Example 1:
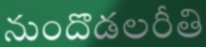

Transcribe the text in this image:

నుందొడలరీతి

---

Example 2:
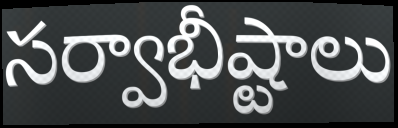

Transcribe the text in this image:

సర్వాభీష్టాలు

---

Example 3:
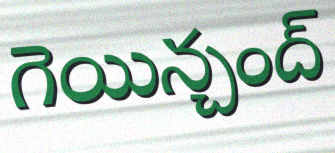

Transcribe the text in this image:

గెయిన్చంద్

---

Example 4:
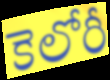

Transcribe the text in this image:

కెలోరీ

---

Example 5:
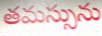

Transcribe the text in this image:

తమస్సును